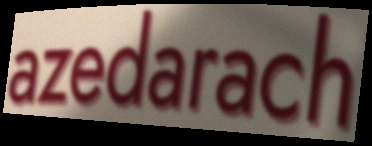
azedarach